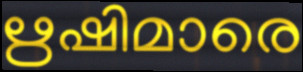
ഋഷിമാരെ